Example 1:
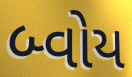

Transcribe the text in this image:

બ્વોય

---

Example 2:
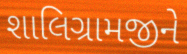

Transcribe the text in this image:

શાલિગ્રામજીને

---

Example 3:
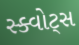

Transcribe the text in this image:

સ્ક્વોટ્સ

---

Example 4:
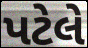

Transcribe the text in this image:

પટેલે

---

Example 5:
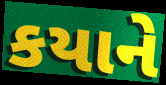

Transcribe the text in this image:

કયાને